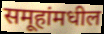
समूहांमधील